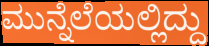
ಮುನ್ನೆಲೆಯಲ್ಲಿದ್ದು